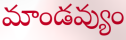
మాండవ్యుం